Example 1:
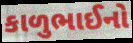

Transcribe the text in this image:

કાળુભાઈનો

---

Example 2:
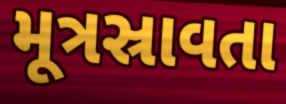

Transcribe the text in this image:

મૂત્રસ્રાવતા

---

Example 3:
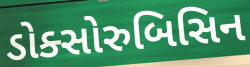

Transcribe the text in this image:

ડોક્સોરુબિસિન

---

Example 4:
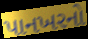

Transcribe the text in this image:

પાનખરનો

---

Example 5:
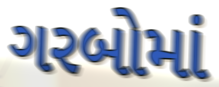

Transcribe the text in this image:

ગરબોમાં